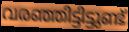
വരഞ്ഞിട്ടിട്ടുണ്ട്